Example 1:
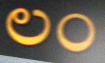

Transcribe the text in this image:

లం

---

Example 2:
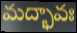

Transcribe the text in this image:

మద్భావః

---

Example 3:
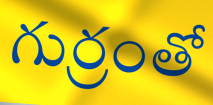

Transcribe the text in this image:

గుర్రంతో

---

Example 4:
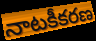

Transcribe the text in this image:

నాటకీకరణ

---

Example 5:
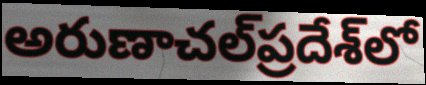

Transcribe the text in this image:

అరుణాచల్‌ప్రదేశ్‌లో